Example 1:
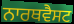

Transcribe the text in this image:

ਨਾਰਥਵੈਸਟ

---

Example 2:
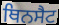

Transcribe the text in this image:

ਥਿਨਸੈਟ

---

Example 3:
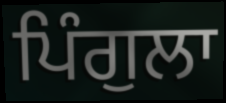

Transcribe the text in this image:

ਪਿੰਗੁਲਾ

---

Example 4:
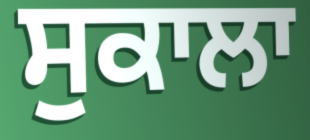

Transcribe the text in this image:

ਸੁਕਾਲਾ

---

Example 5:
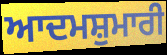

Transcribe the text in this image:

ਆਦਮਸ਼ੁਮਾਰੀ